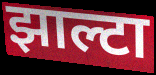
झाल्टा